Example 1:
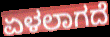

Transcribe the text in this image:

ಏಳಲಾಗದೆ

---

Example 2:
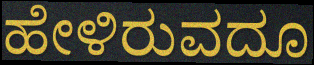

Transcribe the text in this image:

ಹೇಳಿರುವದೂ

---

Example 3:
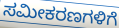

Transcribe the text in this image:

ಸಮೀಕರಣಗಳಿಗೆ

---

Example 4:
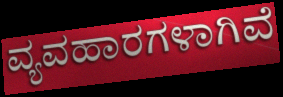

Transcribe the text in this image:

ವ್ಯವಹಾರಗಳಾಗಿವೆ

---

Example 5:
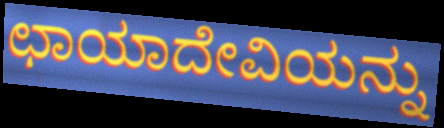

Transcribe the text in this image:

ಛಾಯಾದೇವಿಯನ್ನು